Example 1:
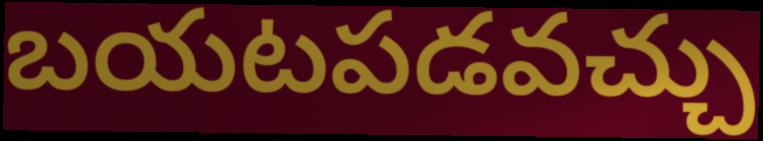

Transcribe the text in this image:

బయటపడవచ్చు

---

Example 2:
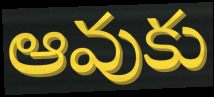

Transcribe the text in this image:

ఆవుకు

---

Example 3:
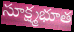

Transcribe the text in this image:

సూక్ష్మభూత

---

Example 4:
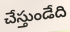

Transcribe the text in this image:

చేస్తుండేది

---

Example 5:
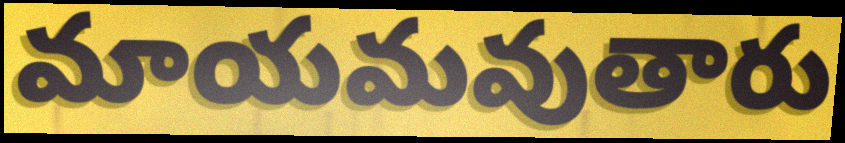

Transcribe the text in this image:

మాయమవుతారు